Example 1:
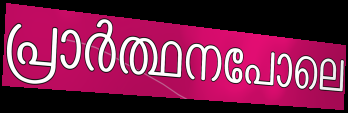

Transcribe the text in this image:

പ്രാർത്ഥനപോലെ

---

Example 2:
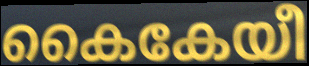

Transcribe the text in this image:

കൈകേയീ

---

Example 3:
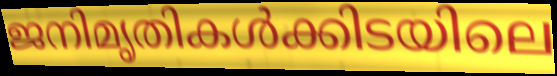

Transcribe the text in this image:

ജനിമൃതികൾക്കിടയിലെ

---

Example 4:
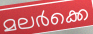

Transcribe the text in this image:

മലർക്കെ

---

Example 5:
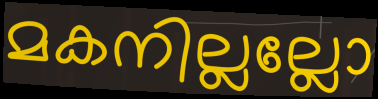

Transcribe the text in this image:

മകനില്ലല്ലോ